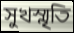
সুখস্মৃতি